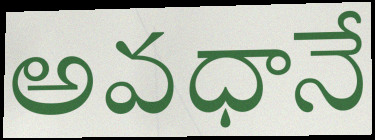
అవధానే